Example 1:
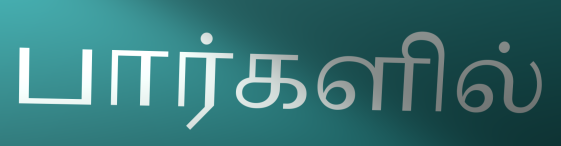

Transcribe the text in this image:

பார்களில்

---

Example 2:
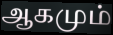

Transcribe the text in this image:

ஆகமும்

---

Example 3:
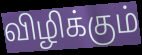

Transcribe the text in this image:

விழிக்கும்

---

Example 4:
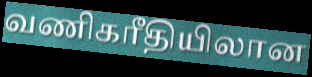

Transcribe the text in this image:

வணிகரீதியிலான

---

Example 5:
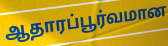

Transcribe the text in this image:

ஆதாரப்பூர்வமான